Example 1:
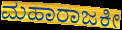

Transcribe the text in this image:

ಮಹಾರಾಜಕೀ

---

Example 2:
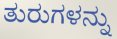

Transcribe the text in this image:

ತುರುಗಳನ್ನು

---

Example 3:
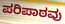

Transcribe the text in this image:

ಪರಿಪಾಠವು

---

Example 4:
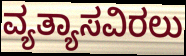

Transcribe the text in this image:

ವ್ಯತ್ಯಾಸವಿರಲು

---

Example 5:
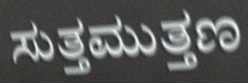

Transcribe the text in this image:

ಸುತ್ತಮುತ್ತಣ